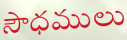
సౌధములు